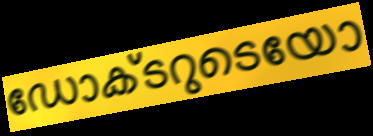
ഡോക്ടറുടെയോ